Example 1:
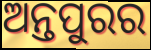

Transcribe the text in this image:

ଅନ୍ତପୁରର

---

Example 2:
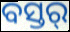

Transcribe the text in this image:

ବସ୍ତର୍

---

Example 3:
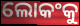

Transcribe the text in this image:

ଲୋକଂକୁ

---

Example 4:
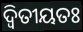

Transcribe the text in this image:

ଦ୍ବିତୀୟତଃ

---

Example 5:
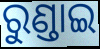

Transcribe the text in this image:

ରୁଣ୍ଡାଇ